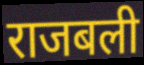
राजबली